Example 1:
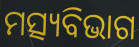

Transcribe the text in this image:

ମତ୍ସ୍ୟବିଭାଗ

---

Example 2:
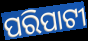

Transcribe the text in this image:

ପରିପାଟୀ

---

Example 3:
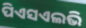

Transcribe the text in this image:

ପିଏସଏଲଭି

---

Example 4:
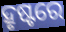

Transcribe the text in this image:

ହୃଷ୍ଟରେ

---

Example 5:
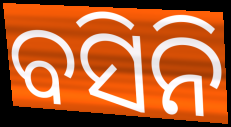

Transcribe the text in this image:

ବସିନି